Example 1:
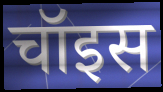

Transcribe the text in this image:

चॉइस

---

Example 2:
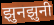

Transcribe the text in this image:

झुनझुनी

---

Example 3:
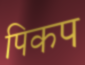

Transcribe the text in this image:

पिकप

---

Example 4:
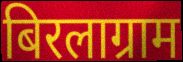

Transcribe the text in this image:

बिरलाग्राम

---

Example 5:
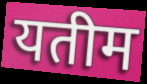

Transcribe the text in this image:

यतीम